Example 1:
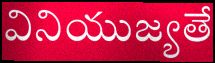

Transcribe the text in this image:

వినియుజ్యతే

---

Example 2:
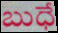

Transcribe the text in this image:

బుధే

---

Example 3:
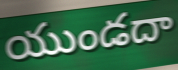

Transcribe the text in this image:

యుండదా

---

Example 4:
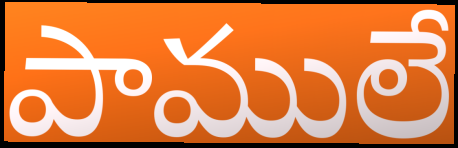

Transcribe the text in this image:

పాములే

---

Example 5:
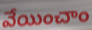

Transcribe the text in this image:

వేయించాం